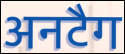
अनटैग